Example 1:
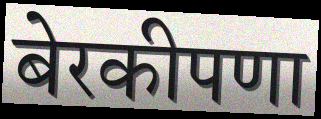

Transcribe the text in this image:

बेरकीपणा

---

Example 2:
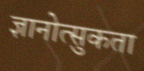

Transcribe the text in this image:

ज्ञानोत्सुकता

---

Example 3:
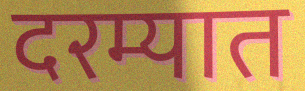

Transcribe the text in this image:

दरम्यात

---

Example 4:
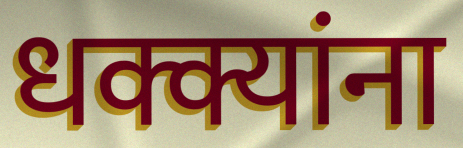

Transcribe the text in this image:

धक्क्यांना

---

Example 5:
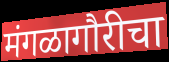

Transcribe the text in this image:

मंगळागौरीचा